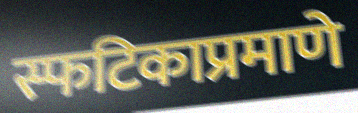
स्फटिकाप्रमाणे